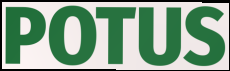
POTUS